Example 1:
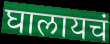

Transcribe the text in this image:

घालायचं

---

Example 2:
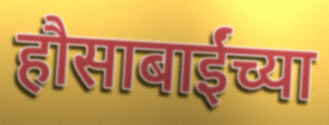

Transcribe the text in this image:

हौसाबाईंच्या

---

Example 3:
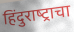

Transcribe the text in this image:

हिंदुराष्ट्राचा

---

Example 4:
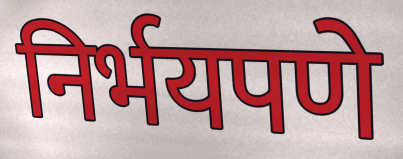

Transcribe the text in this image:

निर्भयपणे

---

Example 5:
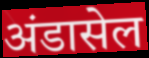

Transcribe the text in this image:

अंडासेल